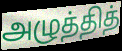
அழுத்தித்